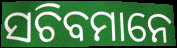
ସଚିବମାନେ